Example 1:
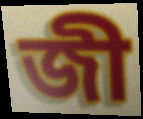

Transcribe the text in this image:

জী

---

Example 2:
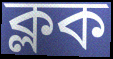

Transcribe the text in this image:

ক্লক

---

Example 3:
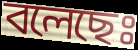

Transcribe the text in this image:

বলেছেঃ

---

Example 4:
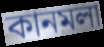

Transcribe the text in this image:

কানমলা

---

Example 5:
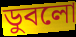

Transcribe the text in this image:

ডুবলো